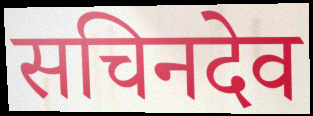
सचिनदेव